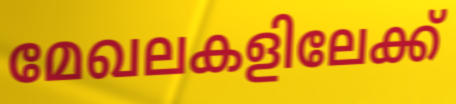
മേഖലകളിലേക്ക്